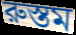
রুস্তম